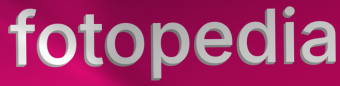
fotopedia